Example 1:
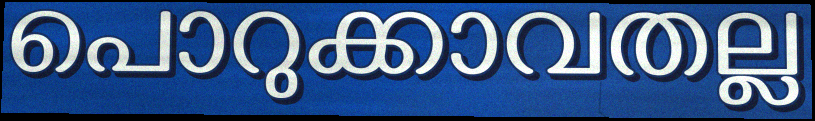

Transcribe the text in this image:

പൊറുക്കാവതല്ല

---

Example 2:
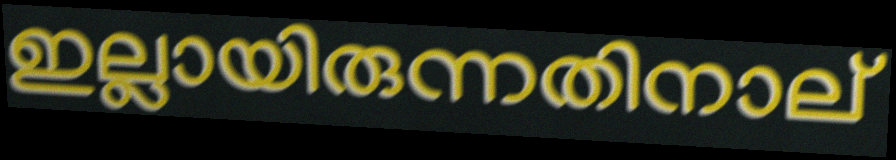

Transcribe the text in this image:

ഇല്ലായിരുന്നതിനാല്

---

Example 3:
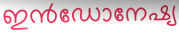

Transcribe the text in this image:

ഇൻഡോനേഷ്യ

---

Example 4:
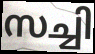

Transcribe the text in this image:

സച്ചി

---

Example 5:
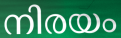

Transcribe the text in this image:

നിരയം